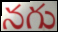
నగు